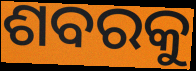
ଶବରକୁ